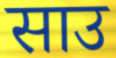
साउ